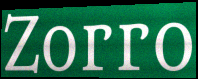
Zorro